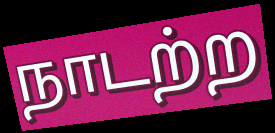
நாடற்ற